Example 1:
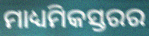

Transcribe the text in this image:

ମାଧ୍ୟମିକସ୍ତରର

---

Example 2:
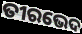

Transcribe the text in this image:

ତୀରଭେଦ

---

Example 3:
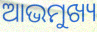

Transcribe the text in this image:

ଆଭମୁଖ୍ୟ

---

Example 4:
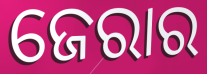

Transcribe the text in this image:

ଜେରାର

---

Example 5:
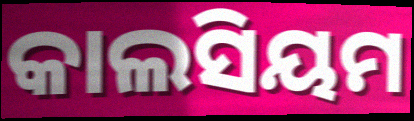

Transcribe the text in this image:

କାଲସିୟମ